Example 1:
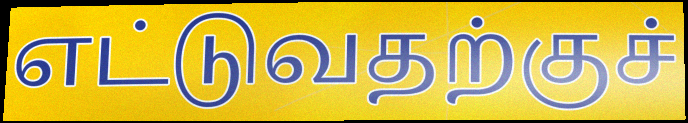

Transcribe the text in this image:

எட்டுவதற்குச்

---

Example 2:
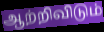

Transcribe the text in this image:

ஆற்றிவிடும்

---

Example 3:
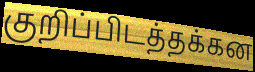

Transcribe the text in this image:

குறிப்பிடத்தக்கன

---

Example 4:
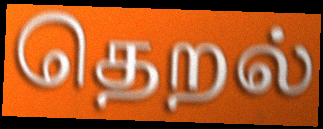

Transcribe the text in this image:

தெறல்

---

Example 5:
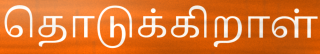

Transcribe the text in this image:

தொடுக்கிறாள்